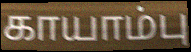
காயாம்பு